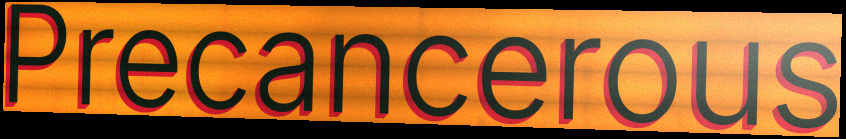
Precancerous